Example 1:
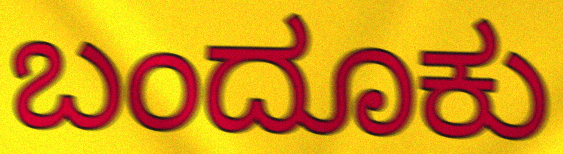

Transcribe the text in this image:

ಬಂದೂಕು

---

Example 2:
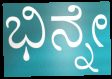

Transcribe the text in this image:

ಭಿನ್ನೇ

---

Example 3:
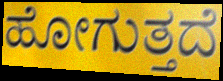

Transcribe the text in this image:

ಹೋಗುತ್ತದೆ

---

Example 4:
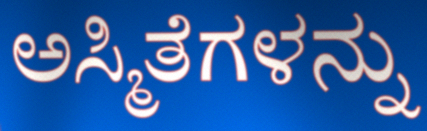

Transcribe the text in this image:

ಅಸ್ಮಿತೆಗಳನ್ನು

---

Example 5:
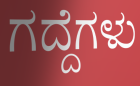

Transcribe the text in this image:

ಗದ್ದೆಗಳು